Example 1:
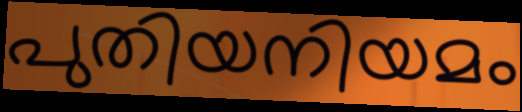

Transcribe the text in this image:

പുതിയനിയമം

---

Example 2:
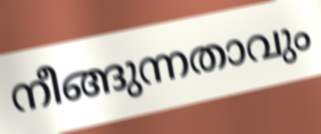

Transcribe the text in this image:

നീങ്ങുന്നതാവും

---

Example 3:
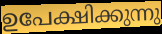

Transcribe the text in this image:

ഉപേക്ഷിക്കുന്നു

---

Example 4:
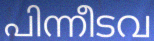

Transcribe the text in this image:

പിന്നീടവ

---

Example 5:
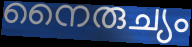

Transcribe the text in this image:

നൈരുച്യം